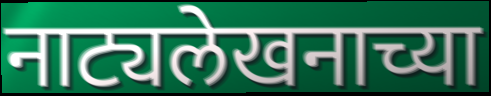
नाट्यलेखनाच्या